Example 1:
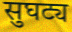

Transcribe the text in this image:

सुघट्य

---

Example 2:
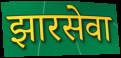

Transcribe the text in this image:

झारसेवा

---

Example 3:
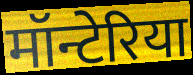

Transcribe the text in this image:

मॉन्टेरिया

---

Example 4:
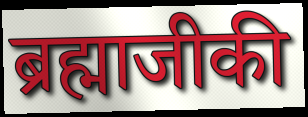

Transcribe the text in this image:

ब्रह्माजीकी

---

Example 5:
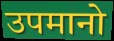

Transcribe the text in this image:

उपमानो